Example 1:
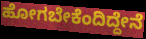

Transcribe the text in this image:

ಹೋಗಬೇಕೆಂದಿದ್ದೇನೆ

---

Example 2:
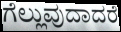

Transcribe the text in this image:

ಗೆಲ್ಲುವುದಾದರೆ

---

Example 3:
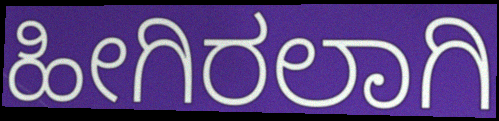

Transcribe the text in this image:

ಹೀಗಿರಲಾಗಿ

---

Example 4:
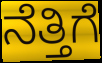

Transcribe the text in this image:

ನೆತ್ತಿಗೆ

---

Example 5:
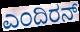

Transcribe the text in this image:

ಎಂದಿರನ್